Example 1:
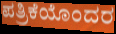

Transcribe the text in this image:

ಪತ್ರಿಕೆಯೊಂದರ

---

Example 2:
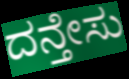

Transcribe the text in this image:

ದನ್ತೇಸು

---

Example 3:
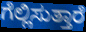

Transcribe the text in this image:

ಗೆಲ್ಲಿಸುತ್ತಾರೆ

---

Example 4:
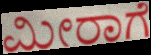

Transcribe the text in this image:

ಮೀರಾಗೆ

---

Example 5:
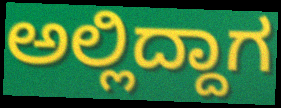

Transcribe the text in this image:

ಅಲ್ಲಿದ್ದಾಗ